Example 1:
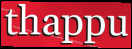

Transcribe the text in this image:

thappu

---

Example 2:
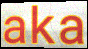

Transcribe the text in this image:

aka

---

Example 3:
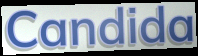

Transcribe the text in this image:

Candida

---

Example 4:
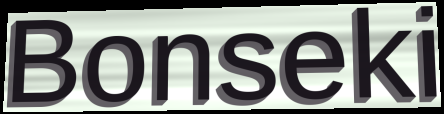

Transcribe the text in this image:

Bonseki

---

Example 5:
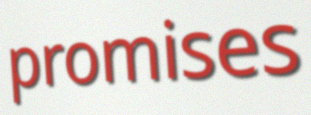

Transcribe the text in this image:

promises